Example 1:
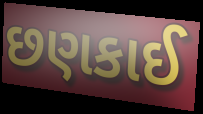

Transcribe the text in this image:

છણકાઈ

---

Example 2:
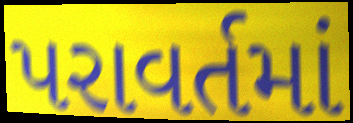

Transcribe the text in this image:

પરાવર્તમાં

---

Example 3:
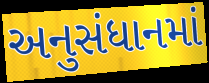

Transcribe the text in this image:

અનુસંધાનમાં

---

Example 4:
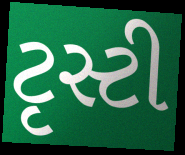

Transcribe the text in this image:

ટૃસ્ટી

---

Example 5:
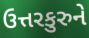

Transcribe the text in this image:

ઉત્તરકુરુને